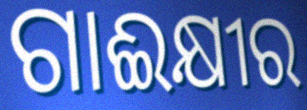
ଗାଈକ୍ଷୀର